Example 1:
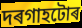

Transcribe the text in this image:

দৰগাহটোৰ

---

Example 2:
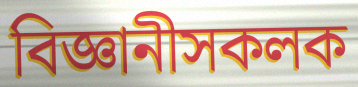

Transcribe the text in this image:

বিজ্ঞানীসকলক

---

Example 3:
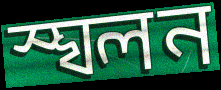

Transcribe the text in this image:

স্খলন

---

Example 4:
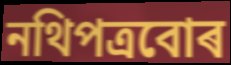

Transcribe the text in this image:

নথিপত্ৰবোৰ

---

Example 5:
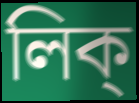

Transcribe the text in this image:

লিক্